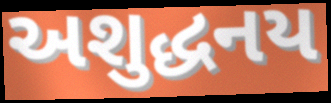
અશુદ્ધનય